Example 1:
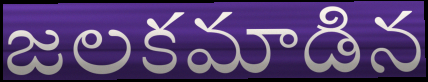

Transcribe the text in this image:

జలకమాడిన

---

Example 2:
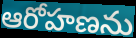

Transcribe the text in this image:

ఆరోహణను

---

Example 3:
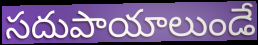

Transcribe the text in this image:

సదుపాయాలుండే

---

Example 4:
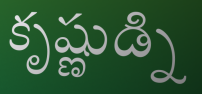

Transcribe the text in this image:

కృష్ణుడ్ని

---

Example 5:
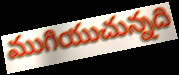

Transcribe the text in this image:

ముగియుచున్నది